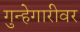
गुन्हेगारीवर